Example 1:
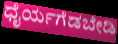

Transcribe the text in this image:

ಧೈರ್ಯಗೆಡಬೇಡಿ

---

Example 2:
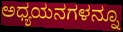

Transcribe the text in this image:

ಅಧ್ಯಯನಗಳನ್ನೂ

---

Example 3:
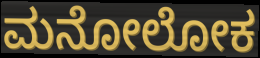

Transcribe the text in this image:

ಮನೋಲೋಕ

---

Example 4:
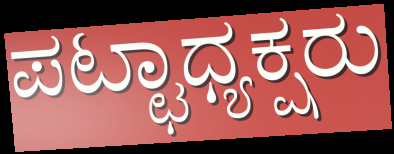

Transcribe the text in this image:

ಪಟ್ಟಾಧ್ಯಕ್ಷರು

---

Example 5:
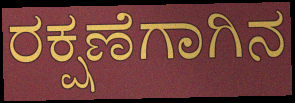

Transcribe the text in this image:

ರಕ್ಷಣೆಗಾಗಿನ